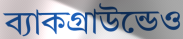
ব্যাকগ্রাউন্ডেও